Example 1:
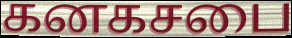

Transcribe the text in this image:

கனகசபை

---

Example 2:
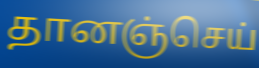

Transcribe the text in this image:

தானஞ்செய்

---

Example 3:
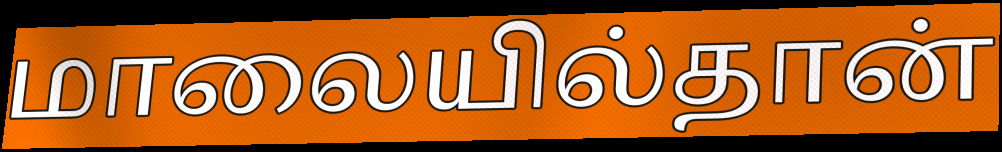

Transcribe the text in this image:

மாலையில்தான்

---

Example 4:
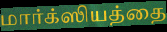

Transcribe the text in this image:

மார்க்ஸியத்தை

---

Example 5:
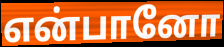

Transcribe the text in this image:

என்பானோ